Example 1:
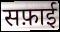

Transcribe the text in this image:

सफ़ाई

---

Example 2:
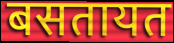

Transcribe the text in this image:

बसतायत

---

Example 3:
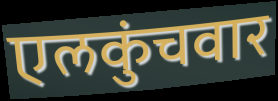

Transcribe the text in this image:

एलकुंचवार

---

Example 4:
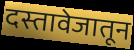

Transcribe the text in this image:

दस्तावेजातून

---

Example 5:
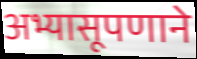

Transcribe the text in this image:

अभ्यासूपणाने